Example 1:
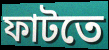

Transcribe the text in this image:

ফাটতে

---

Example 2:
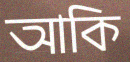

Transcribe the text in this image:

আকি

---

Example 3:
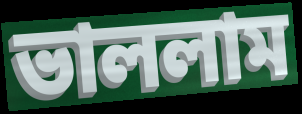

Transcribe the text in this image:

ভাললাম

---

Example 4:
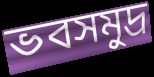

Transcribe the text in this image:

ভবসমুদ্র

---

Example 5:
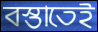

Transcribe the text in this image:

বস্তাতেই